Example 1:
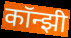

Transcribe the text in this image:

कॉन्झी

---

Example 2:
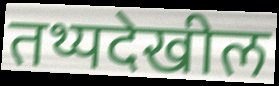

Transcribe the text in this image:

तथ्यदेखील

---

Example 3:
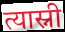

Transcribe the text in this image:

त्यास्नी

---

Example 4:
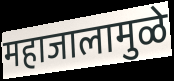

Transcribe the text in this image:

महाजालामुळे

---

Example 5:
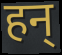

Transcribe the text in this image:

हन्